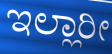
ಇಲ್ಲಾರೀ